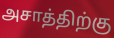
அசாத்திற்கு